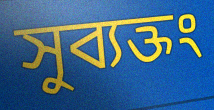
সুব্যক্তং